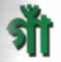
গাঁ